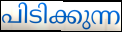
പിടിക്കുന്ന